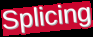
Splicing